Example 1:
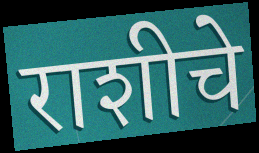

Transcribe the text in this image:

राशीचे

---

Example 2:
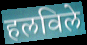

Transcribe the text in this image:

हलविले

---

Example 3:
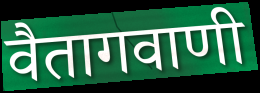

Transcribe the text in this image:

वैतागवाणी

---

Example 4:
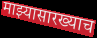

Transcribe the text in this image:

माझ्यासारख्याच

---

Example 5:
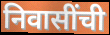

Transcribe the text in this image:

निवासींची